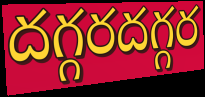
దగ్గరదగ్గర